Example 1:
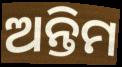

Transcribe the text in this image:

ଅନ୍ତିମ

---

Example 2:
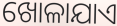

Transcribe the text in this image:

ଖୋଳାଯାଏ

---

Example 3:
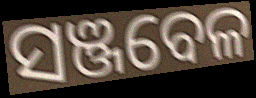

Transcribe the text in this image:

ସଞ୍ଜବେଳ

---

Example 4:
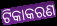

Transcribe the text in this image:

ଟିକାକରଣ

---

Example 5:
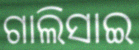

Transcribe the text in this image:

ଗାଲିସାଇ